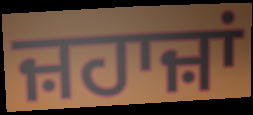
ਜ਼ਹਾਜ਼ਾਂ